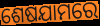
ଶେଷଯାମରେ